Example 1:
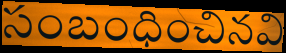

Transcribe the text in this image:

సంబంధించినవి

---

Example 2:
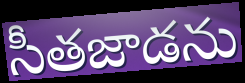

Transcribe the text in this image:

సీతజాడను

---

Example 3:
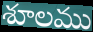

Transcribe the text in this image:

శూలము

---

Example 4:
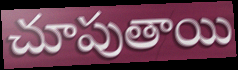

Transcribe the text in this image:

చూపుతాయి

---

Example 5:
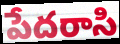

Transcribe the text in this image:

పేదరాసి